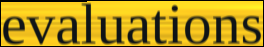
evaluations